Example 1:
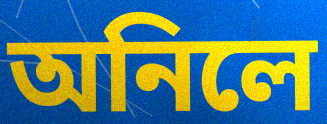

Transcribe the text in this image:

অনিলে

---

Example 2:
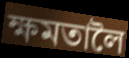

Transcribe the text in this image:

ক্ষমতালৈ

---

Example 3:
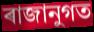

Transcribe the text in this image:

ৰাজানুগত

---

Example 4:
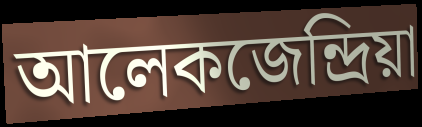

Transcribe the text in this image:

আলেকজেন্দ্ৰিয়া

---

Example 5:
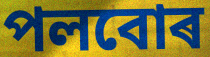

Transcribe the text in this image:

পলবোৰ